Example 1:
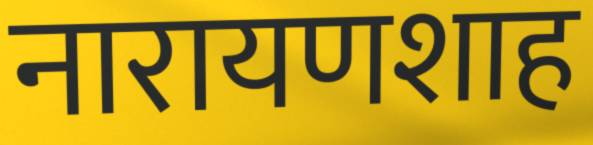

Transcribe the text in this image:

नारायणशाह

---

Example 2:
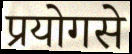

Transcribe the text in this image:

प्रयोगसे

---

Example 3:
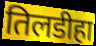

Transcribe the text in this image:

तिलडीहा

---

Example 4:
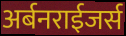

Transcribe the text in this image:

अर्बनराईजर्स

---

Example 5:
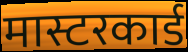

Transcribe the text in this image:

मास्टरकार्ड